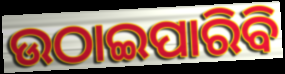
ଉଠାଇପାରିବି